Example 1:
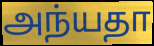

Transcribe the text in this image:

அந்யதா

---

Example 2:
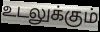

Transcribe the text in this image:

உடலுக்கும்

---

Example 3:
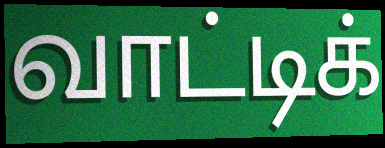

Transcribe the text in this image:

வாட்டிக்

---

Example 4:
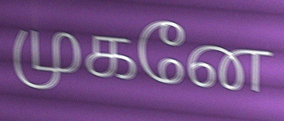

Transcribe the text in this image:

முகனே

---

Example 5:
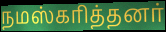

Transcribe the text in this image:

நமஸ்கரித்தனர்